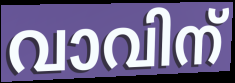
വാവിന്